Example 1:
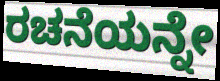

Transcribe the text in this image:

ರಚನೆಯನ್ನೇ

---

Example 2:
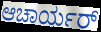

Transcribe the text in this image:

ಆಚಾರ್ಯರ್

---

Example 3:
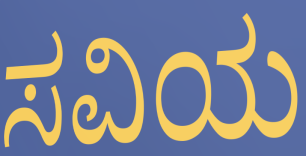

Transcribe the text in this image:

ಸವಿಯ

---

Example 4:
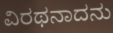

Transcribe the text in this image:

ವಿರಥನಾದನು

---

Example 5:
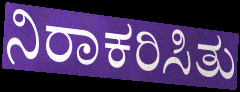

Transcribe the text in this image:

ನಿರಾಕರಿಸಿತು